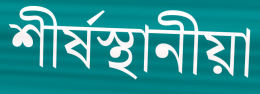
শীর্ষস্থানীয়া